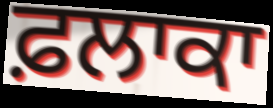
ਫ਼ਲਾਕਾ